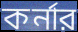
কর্নার